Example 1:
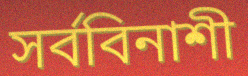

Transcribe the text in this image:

সর্ববিনাশী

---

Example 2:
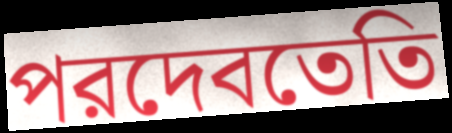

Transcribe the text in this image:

পরদেবতেতি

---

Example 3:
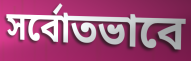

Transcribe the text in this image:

সর্বোতভাবে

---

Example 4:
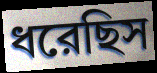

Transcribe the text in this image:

ধরেছিস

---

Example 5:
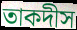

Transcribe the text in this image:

তাকদীস